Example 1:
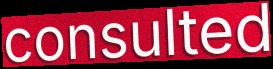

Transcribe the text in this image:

consulted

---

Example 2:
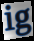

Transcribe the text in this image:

ig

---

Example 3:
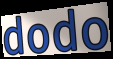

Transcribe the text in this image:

dodo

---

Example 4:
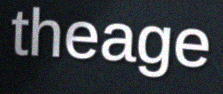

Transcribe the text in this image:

theage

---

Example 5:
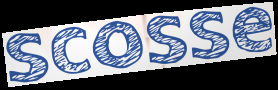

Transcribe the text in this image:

scosse